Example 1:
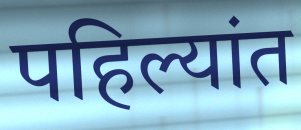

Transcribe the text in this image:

पहिल्यांत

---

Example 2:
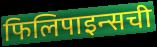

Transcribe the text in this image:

फिलिपाइन्सची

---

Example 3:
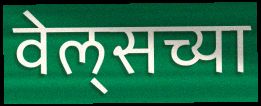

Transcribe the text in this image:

वेल्सच्या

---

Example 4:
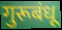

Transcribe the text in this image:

गुरूबंधू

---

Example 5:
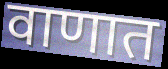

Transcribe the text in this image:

वाणात